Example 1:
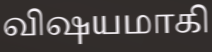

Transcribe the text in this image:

விஷயமாகி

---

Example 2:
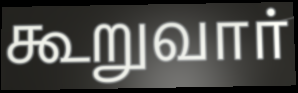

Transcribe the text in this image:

கூறுவார்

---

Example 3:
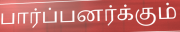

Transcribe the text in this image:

பார்ப்பனர்க்கும்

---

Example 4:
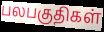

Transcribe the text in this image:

பலபகுதிகள்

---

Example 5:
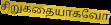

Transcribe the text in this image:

சிறுகதையாகவோ